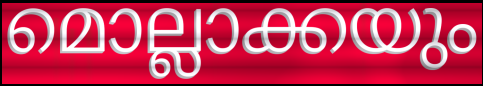
മൊല്ലാക്കയും